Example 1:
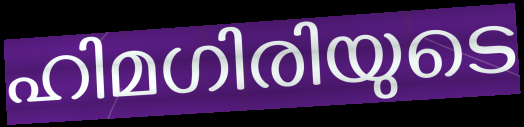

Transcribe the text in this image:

ഹിമഗിരിയുടെ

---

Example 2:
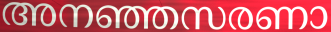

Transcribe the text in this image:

അനഞ്ഞസരണാ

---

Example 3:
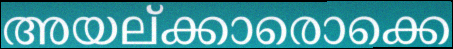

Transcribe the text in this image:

അയല്ക്കാരൊക്കെ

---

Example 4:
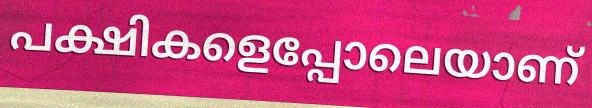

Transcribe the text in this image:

പക്ഷികളെപ്പോലെയാണ്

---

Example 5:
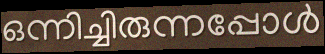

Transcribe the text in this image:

ഒന്നിച്ചിരുന്നപ്പോൾ